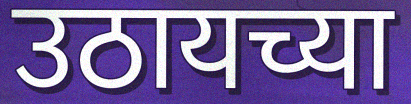
उठायच्या